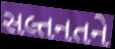
સલ્તનતને